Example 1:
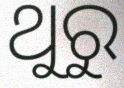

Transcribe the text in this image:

ଥୁରୁ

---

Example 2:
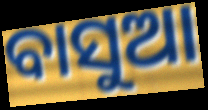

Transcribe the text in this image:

ବାସୁଆ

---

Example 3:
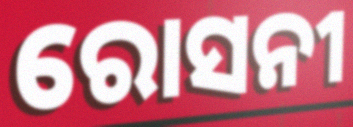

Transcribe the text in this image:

ରୋସନୀ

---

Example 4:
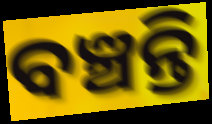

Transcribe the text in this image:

ବଞ୍ଚନ୍ତି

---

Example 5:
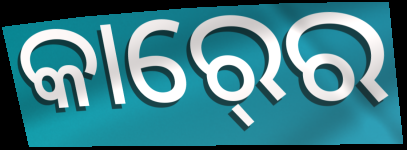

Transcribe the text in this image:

କାର୍‍ରେ